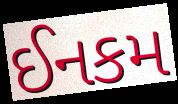
ઈનકમ